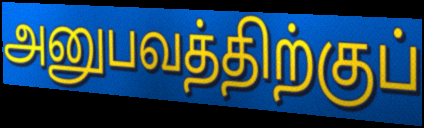
அனுபவத்திற்குப்